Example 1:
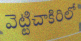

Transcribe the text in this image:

వెట్టిచాకిరిలో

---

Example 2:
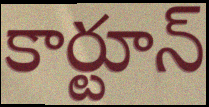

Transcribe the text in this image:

కార్టూన్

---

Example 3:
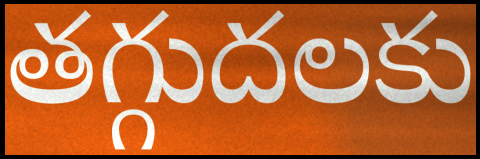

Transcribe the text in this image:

తగ్గుదలకు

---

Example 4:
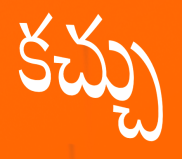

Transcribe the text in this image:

కచ్చు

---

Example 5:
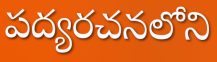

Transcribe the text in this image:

పద్యరచనలోని